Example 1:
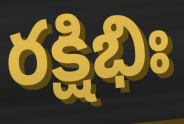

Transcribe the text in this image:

రక్షిభిః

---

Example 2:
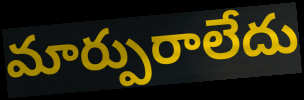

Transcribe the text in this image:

మార్పురాలేదు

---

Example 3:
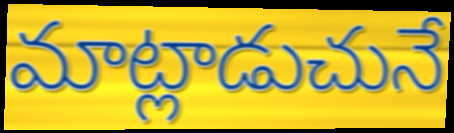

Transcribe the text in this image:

మాట్లాడుచునే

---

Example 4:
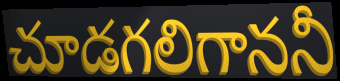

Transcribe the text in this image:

చూడగలిగాననీ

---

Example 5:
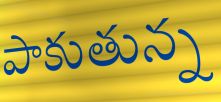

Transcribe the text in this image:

పాకుతున్న